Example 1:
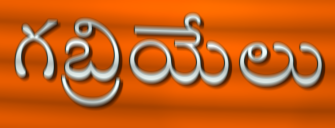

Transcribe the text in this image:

గబ్రియేలు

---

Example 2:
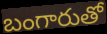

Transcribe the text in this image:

బంగారుతో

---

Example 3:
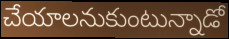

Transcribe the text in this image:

చేయాలనుకుంటున్నాడో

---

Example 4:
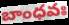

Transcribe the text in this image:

బాంధవః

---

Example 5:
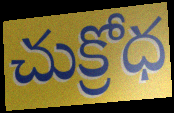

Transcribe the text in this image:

చుక్రోధ